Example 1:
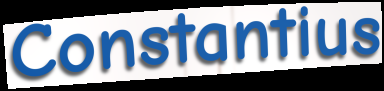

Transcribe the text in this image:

Constantius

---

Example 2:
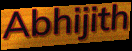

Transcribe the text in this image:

Abhijith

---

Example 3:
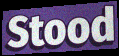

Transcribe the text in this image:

Stood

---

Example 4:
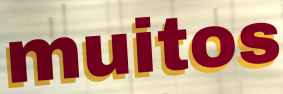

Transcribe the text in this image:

muitos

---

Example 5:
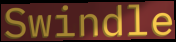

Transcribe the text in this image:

Swindle